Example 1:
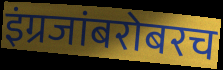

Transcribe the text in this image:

इंग्रजांबरोबरच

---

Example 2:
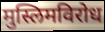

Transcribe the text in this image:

मुस्लिमविरोध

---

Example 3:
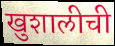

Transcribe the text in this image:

खुशालीची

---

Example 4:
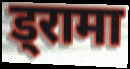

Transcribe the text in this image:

ड्रामा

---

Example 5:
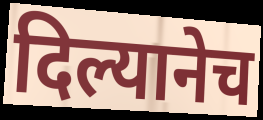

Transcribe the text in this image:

दिल्यानेच